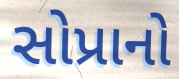
સોપ્રાનો